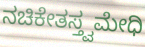
ನಚಿಕೇತಸ್ತ್ವಮೇಧಿ